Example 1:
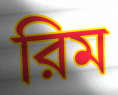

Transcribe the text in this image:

রিম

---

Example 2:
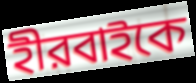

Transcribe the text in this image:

হীরবাইকে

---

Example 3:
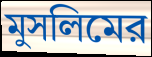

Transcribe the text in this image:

মুসলিমের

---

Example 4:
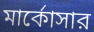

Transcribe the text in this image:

মার্কোসার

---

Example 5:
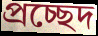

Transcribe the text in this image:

প্রচ্ছেদ